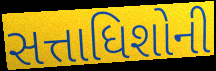
સત્તાધિશોની